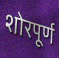
शोरपूर्ण